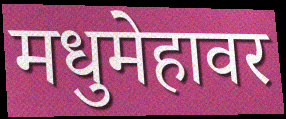
मधुमेहावर